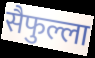
सैफुल्ला